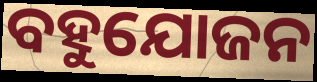
ବହୁଯୋଜନ